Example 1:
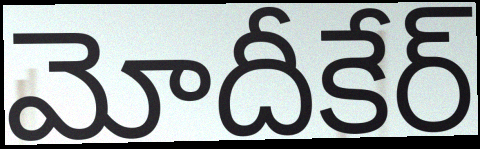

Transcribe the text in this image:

మోదీకేర్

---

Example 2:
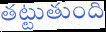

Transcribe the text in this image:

తట్టుతుంది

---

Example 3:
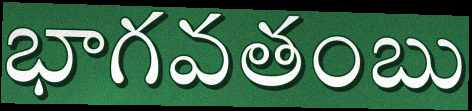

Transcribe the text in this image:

భాగవతంబు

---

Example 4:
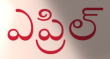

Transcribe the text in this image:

ఎప్రిల్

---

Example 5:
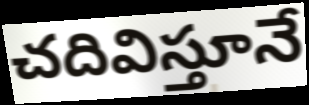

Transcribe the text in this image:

చదివిస్తూనే